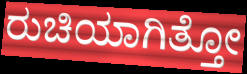
ರುಚಿಯಾಗಿತ್ತೋ